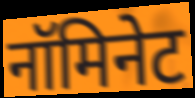
नॉमिनेट